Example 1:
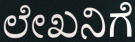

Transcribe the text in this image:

ಲೇಖನಿಗೆ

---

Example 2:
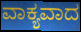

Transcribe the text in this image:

ವಾಕ್ಯವಾದ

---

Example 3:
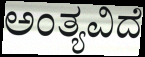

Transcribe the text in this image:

ಅಂತ್ಯವಿದೆ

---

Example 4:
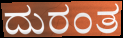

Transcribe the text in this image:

ದುರಂತ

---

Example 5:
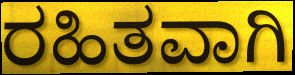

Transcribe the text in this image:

ರಹಿತವಾಗಿ